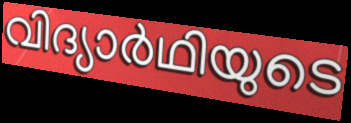
വിദ്യാർഥിയുടെ